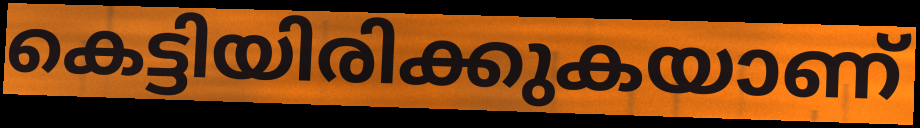
കെട്ടിയിരിക്കുകയാണ്